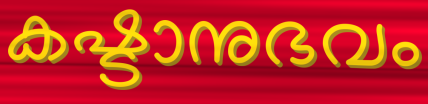
കഷ്ടാനുഭവം